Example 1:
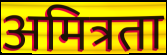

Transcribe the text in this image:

अमित्रता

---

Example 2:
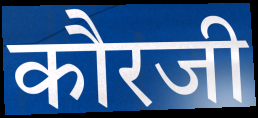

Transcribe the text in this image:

कौरजी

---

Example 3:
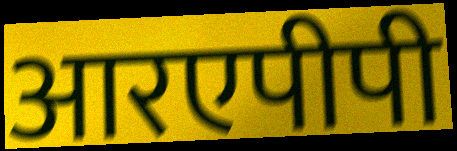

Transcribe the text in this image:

आरएपीपी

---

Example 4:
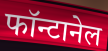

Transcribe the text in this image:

फॉन्टानेल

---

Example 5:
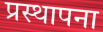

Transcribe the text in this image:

प्रस्थापना